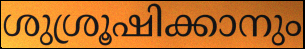
ശുശ്രൂഷിക്കാനും